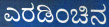
ಎರಡಿಂಚಿನ